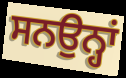
ਸਨਉਨ੍ਹਾਂ